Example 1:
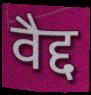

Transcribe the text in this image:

वैद्द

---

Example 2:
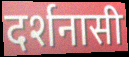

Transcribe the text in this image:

दर्शनासी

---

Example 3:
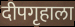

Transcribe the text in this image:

दीपगृहाला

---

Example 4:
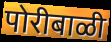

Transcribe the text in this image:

पोरीबाळी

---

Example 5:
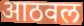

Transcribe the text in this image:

आठवल